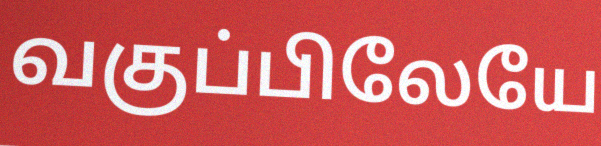
வகுப்பிலேயே